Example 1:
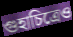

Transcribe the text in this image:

গুহাচিত্রেও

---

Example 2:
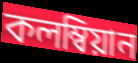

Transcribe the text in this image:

কলম্বিয়ান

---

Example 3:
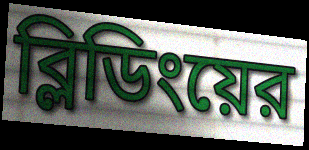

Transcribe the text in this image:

ব্লিডিংয়ের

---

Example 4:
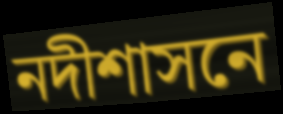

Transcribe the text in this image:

নদীশাসনে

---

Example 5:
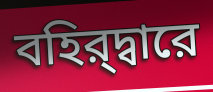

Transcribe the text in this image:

বহির্‌দ্বারে